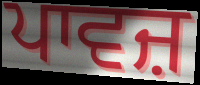
ਪਾਵਜ਼